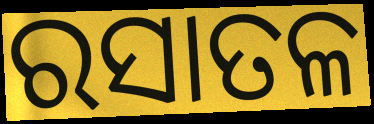
ରସାତଳ